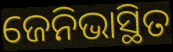
ଜେନିଭାସ୍ଥିତ